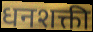
धनशक्ती